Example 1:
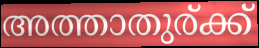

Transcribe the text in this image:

അത്താതുര്ക്ക്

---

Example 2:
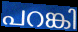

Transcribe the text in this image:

പറങ്കി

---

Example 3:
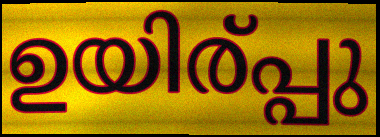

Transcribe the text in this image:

ഉയിര്പ്പു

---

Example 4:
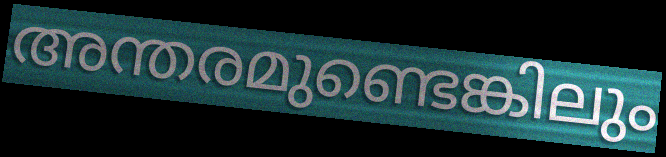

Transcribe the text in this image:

അന്തരമുണ്ടെങ്കിലും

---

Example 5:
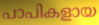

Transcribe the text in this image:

പാപികളായ